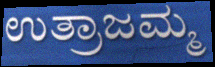
ಉತ್ರಾಜಮ್ಮ